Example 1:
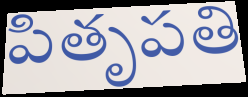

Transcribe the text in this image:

పితృపతి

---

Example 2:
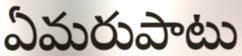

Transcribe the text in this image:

ఏమరుపాటు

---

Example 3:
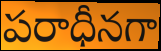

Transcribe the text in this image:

పరాధీనగా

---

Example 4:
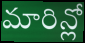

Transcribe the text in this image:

మారిన్లో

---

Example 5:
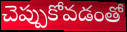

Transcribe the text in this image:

చెప్పుకోవడంతో